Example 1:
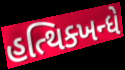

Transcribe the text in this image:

હત્થિક્ખન્ધે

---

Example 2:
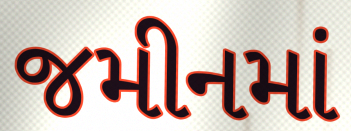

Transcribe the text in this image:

જમીનમાં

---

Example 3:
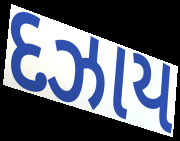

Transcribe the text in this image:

દઝાય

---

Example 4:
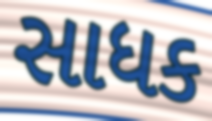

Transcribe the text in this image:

સાધક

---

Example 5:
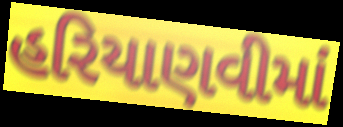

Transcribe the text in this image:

હરિયાણવીમાં